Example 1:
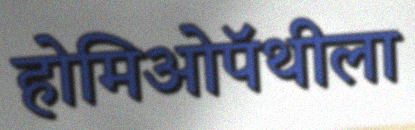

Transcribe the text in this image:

होमिओपॅथीला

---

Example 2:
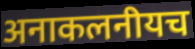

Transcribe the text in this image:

अनाकलनीयच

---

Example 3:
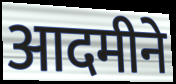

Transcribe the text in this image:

आदमीने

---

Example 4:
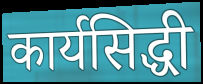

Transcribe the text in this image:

कार्यसिद्धी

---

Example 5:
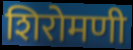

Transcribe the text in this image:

शिरोमणी